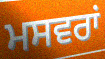
ਮਸਵਰਾਂ